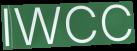
IWCC